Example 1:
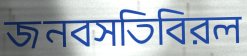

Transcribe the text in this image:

জনবসতিবিরল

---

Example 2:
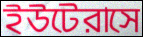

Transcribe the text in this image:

ইউটেরাসে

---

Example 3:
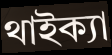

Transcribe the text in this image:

থাইক্যা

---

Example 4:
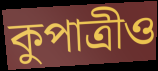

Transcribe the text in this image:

কুপাত্রীও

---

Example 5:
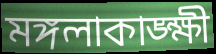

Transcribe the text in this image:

মঙ্গলাকাঙ্ক্ষী